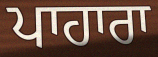
ਪਾਹਾਰਾ